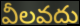
వీలవదు